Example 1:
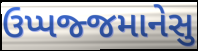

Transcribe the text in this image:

ઉપ્પજ્જમાનેસુ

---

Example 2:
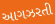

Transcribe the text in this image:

આગઝરતી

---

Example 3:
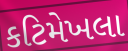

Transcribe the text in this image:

કટિમેખલા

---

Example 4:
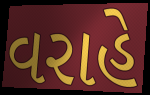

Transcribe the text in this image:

વરાહે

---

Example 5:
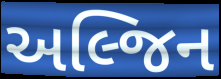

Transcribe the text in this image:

અલ્જિન